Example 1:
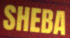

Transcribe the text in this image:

SHEBA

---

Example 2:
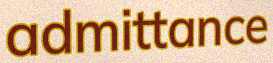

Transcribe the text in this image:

admittance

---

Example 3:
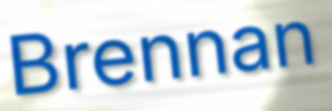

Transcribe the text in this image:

Brennan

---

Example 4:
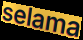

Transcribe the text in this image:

selama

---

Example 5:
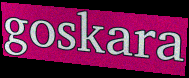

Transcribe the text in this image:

goskara